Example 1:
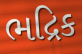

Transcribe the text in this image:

ભદ્રિક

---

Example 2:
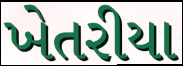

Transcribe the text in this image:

ખેતરીયા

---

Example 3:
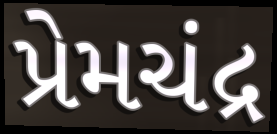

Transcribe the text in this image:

પ્રેમચંદ્ર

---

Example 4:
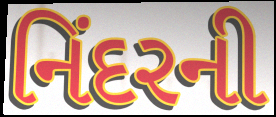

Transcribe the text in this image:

નિંદરની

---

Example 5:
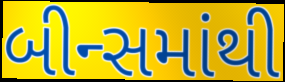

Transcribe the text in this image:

બીન્સમાંથી